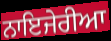
ਨਾਇਜੇਰੀਆ